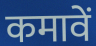
कमावें